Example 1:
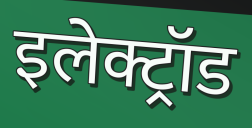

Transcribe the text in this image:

इलेक्ट्रॉड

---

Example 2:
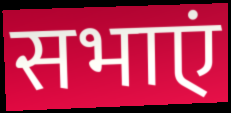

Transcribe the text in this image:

सभाएं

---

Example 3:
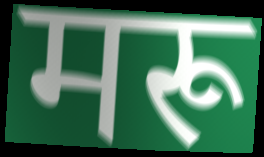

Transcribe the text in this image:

मरू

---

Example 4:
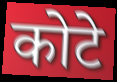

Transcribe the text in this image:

कोटे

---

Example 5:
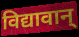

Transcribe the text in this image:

विद्यावान्